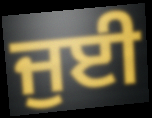
ਜੁਈ